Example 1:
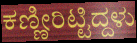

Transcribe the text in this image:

ಕಣ್ಣೀರಿಟ್ಟಿದ್ದಳು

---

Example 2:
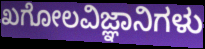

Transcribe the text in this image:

ಖಗೋಲವಿಜ್ಞಾನಿಗಳು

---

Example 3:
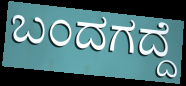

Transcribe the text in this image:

ಬಂದಗದ್ದೆ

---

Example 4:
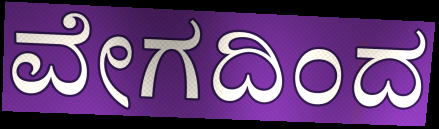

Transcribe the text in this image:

ವೇಗದಿಂದ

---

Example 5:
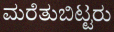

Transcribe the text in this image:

ಮರೆತುಬಿಟ್ಟರು